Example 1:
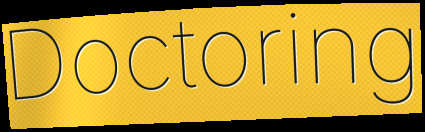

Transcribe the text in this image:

Doctoring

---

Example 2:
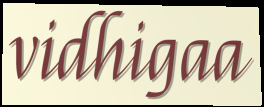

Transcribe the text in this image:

vidhigaa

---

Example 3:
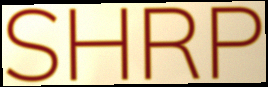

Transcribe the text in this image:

SHRP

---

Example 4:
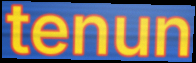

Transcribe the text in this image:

tenun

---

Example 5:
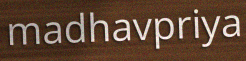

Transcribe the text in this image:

madhavpriya